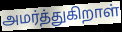
அமர்த்துகிறாள்